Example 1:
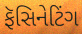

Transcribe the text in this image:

ફૅસિનેટિંગ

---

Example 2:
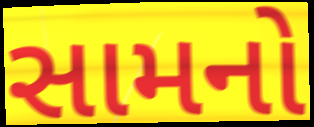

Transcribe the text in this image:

સામનો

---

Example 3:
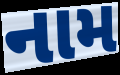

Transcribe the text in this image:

નામ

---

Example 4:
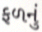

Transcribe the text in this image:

ફળનું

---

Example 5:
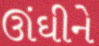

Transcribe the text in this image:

ઊંઘીને